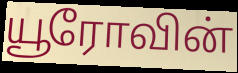
யூரோவின்